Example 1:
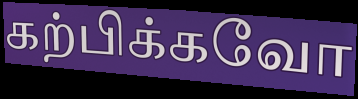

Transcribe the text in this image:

கற்பிக்கவோ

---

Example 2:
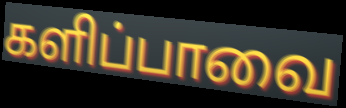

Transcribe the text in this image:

களிப்பாவை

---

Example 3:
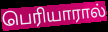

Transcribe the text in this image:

பெரியாரால்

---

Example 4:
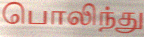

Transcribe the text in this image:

பொலிந்து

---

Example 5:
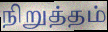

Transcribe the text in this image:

நிறுத்தம்